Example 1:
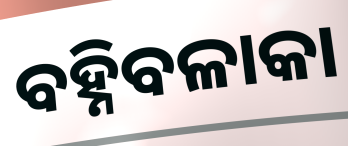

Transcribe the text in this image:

ବହ୍ନିବଳାକା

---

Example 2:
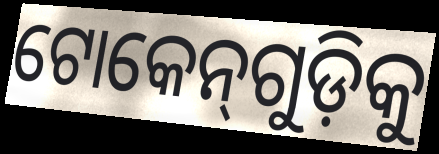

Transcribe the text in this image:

ଟୋକେନ୍‌ଗୁଡ଼ିକୁ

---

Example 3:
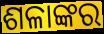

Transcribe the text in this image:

ଶଳାଙ୍କର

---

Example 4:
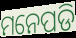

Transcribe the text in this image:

ମନେପଡି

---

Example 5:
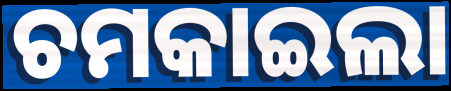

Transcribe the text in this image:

ଚମକାଇଲା